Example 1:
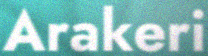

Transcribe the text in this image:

Arakeri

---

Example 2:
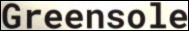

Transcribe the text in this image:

Greensole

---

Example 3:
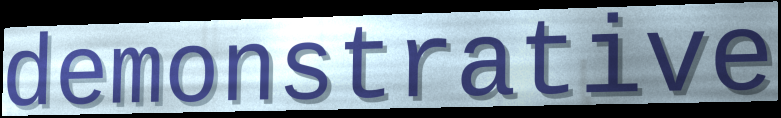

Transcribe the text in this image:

demonstrative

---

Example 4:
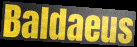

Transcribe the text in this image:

Baldaeus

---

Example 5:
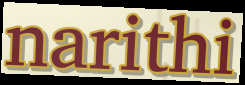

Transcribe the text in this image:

narithi